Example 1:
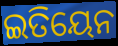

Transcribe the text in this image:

ଇତିୟେନ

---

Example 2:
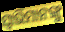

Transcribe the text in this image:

ସ୍ୱାଭିମାନଙ୍କୁ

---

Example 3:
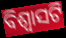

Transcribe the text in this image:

ବିଶ୍ୱାସଟି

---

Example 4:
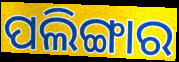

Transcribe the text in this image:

ପଲିଙ୍ଗାର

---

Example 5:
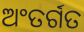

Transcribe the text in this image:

ଅଂତର୍ଗତ